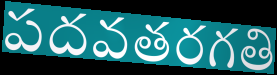
పదవతరగతి